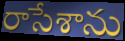
రాసేశాను